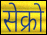
सेक्रो